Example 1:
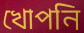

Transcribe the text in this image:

খোপনি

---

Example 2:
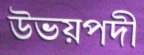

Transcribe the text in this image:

উভয়পদী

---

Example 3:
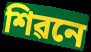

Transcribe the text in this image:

শিৱনে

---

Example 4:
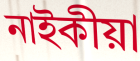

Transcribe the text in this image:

নাইকীয়া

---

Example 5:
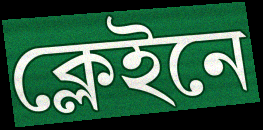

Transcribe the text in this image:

ক্লেইনে